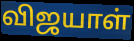
விஜயாள்